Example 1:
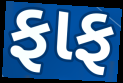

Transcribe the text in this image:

ફાફ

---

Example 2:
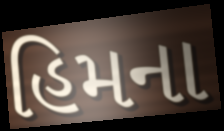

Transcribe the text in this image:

હિમના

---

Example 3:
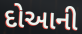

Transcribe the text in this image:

દોઆની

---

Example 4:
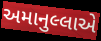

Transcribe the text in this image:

અમાનુલ્લાએ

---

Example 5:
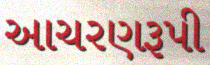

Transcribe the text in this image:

આચરણરૂપી